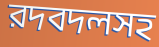
রদবদলসহ